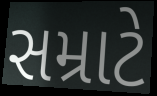
સમ્રાટે